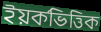
ইয়র্কভিত্তিক